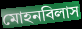
মোহনবিলাস